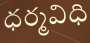
ధర్మవిధి